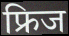
फ्रिज